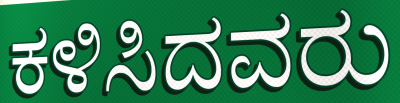
ಕಳಿಸಿದವರು